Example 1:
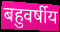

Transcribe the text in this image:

बहुवर्षीय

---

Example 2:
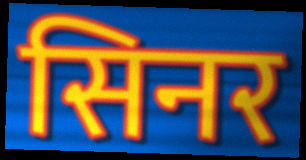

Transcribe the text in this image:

सिनर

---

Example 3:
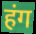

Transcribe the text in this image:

हंग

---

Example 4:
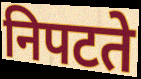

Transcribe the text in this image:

निपटते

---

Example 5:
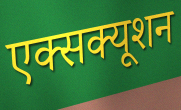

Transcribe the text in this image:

एक्सक्यूशन